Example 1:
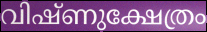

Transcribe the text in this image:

വിഷ്ണുക്ഷേത്രം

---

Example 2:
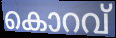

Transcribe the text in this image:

കൊറവ്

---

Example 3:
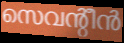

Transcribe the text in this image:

സെവന്റീൻ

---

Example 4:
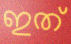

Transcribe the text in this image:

ഇത്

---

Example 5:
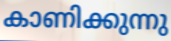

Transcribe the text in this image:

കാണിക്കുന്നു